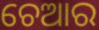
ଚେଆର